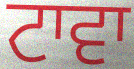
ਟਾਵਾ